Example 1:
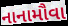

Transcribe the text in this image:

નાનામૌવા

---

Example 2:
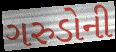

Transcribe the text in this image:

ગરુડોની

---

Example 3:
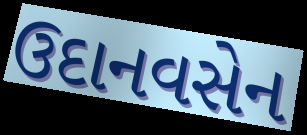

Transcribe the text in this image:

ઉદાનવસેન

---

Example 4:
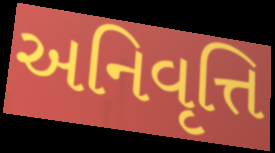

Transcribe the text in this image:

અનિવૃત્તિ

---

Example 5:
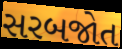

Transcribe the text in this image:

સરબજોત